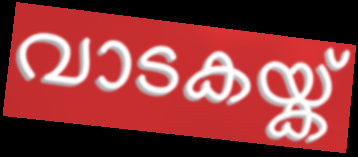
വാടകയ്ക്